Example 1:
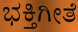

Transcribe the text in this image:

ಭಕ್ತಿಗೀತೆ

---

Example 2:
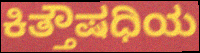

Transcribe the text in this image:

ಕಿತ್ತೌಷಧಿಯ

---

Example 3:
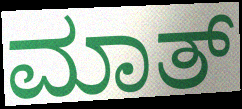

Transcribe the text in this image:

ಮಾತ್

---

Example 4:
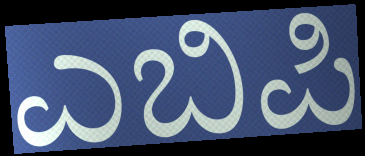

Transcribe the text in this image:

ಎಬಿಪಿ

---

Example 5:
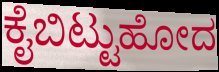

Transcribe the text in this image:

ಕೈಬಿಟ್ಟುಹೋದ